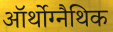
ऑर्थोग्नैथिक